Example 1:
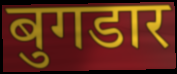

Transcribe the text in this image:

बुगडार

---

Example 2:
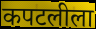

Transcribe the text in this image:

कपटलीला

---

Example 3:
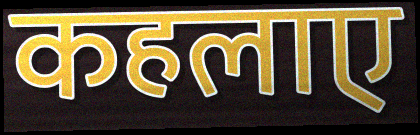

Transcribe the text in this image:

कहलाए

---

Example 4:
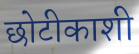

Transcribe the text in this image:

छोटीकाशी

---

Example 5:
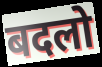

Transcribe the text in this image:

बदलो